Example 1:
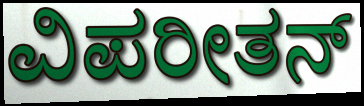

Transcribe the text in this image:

ವಿಪರೀತನ್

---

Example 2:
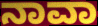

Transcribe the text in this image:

ನಾವಾ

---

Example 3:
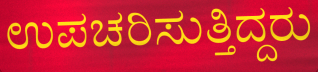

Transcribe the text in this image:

ಉಪಚರಿಸುತ್ತಿದ್ದರು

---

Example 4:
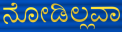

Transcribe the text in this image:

ನೋಡಿಲ್ಲವಾ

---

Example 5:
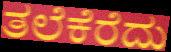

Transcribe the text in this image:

ತಲೆಕೆರೆದು